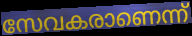
സേവകരാണെന്ന്